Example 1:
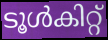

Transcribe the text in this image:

ടൂൾകിറ്റ്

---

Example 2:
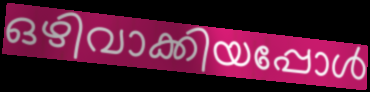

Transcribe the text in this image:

ഒഴിവാക്കിയപ്പോൾ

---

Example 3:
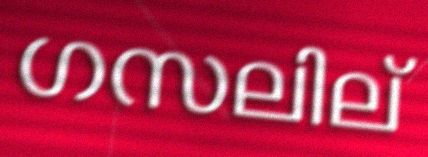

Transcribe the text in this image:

ഗസലില്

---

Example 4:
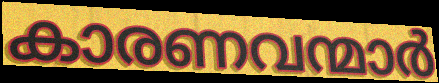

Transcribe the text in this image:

കാരണവന്മാർ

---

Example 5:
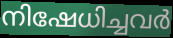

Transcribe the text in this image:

നിഷേധിച്ചവർ